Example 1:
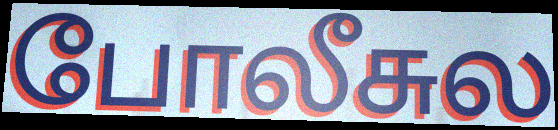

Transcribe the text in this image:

போலீசுல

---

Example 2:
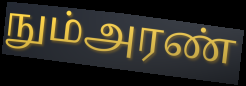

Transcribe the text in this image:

நும்அரண்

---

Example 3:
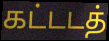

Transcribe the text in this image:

கட்டடத்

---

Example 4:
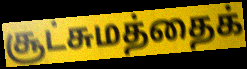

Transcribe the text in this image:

சூட்சுமத்தைக்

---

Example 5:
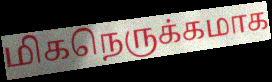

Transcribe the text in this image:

மிகநெருக்கமாக